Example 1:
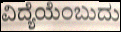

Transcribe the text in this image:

ವಿದ್ಯೆಯೆಂಬುದು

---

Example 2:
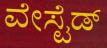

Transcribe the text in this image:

ವೇಸ್ಟೆಡ್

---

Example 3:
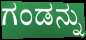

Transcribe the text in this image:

ಗಂಡನ್ನು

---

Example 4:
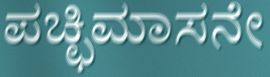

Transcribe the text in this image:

ಪಚ್ಛಿಮಾಸನೇ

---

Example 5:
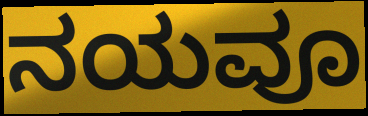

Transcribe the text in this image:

ನಯವೂ